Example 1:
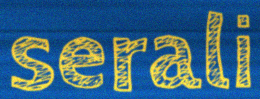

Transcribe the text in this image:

serali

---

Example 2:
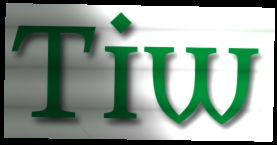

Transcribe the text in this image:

Tiw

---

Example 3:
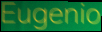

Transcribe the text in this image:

Eugenio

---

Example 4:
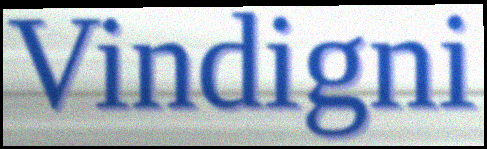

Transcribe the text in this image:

Vindigni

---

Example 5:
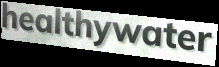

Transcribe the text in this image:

healthywater